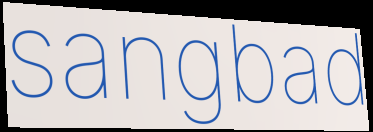
sangbad